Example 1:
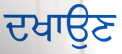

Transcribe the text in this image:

ਦਖਾਉਣ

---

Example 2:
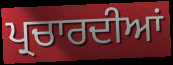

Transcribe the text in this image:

ਪ੍ਰਚਾਰਦੀਆਂ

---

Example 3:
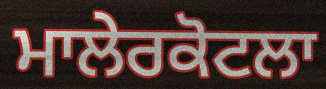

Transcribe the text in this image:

ਮਾਲੇਰਕੋਟਲਾ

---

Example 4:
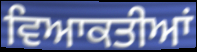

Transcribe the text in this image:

ਵਿਆਕਤੀਆਂ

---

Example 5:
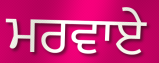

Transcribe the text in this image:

ਮਰਵਾਏ